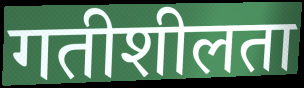
गतीशीलता